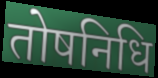
तोषनिधि